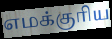
எமக்குரிய